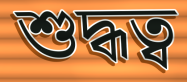
শুদ্ধত্ব